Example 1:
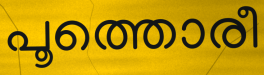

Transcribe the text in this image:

പൂത്തൊരീ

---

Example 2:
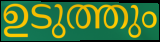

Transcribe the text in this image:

ഉടുത്തും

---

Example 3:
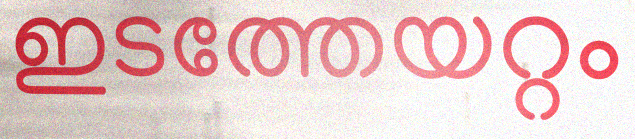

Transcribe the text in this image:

ഇടത്തേയറ്റം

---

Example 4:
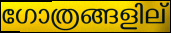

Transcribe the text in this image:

ഗോത്രങ്ങളില്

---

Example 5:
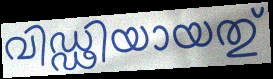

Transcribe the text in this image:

വിഡ്ഢിയായതു്